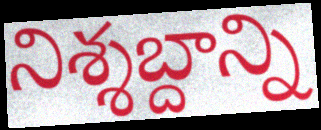
నిశ్శబ్దాన్ని